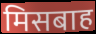
मिसबाह